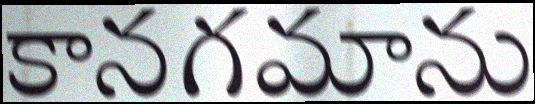
కానగమాను